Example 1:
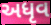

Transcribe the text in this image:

અધૃવ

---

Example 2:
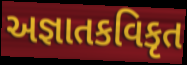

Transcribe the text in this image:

અજ્ઞાતકવિકૃત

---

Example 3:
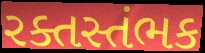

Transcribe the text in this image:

રક્તસ્તંભક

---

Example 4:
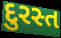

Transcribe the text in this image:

દુરસ્ત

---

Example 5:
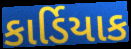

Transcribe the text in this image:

કાર્ડિયાક